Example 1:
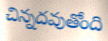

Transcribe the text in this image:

చిన్నదవుతోంది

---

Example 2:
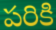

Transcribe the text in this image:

పరికి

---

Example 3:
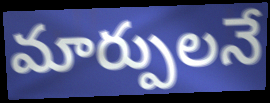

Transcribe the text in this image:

మార్పులనే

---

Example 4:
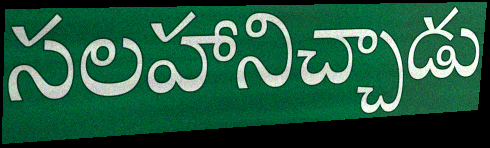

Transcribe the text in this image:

సలహానిచ్చాడు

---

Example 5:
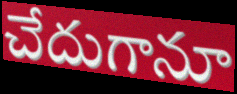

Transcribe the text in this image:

చేదుగానూ